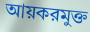
আয়করমুক্ত